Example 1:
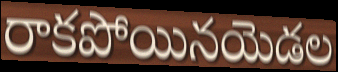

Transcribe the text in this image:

రాకపోయినయెడల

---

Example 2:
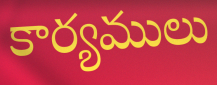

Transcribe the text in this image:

కార్యములు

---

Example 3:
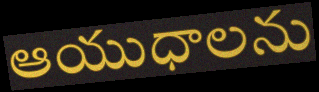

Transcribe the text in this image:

ఆయుధాలను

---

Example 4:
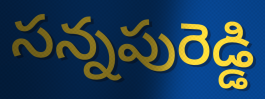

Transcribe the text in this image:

సన్నపురెడ్డి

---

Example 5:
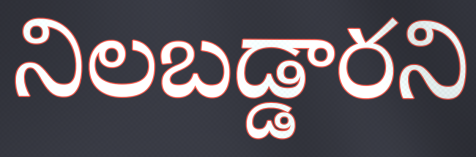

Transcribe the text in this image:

నిలబడ్డారని